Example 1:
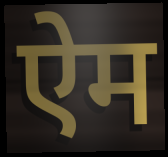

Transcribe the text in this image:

ऐम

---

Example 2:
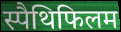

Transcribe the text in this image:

स्पैथिफिलम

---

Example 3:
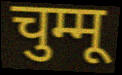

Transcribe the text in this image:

चुम्मू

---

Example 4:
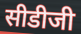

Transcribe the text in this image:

सीडीजी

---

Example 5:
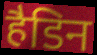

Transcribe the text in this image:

हैडिन